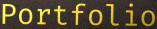
Portfolio